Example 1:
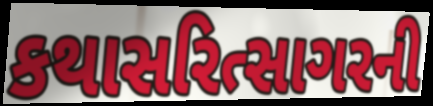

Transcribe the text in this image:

કથાસરિત્સાગરની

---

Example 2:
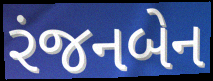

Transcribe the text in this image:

રંજનબેન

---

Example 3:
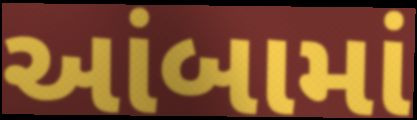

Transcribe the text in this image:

આંબામાં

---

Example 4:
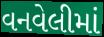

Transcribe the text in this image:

વનવેલીમાં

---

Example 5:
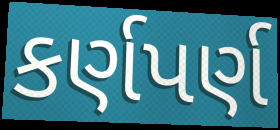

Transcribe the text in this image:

કર્ણપર્ણ